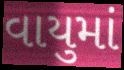
વાયુમાં